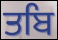
ਤਬਿ